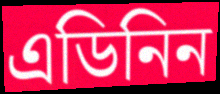
এডিনিন